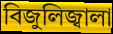
বিজুলিজ্বালা